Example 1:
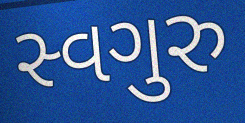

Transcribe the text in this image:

સ્વગુરુ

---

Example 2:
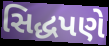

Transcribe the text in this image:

સિદ્ધપણે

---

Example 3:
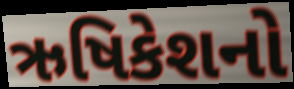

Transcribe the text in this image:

ઋષિકેશનો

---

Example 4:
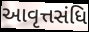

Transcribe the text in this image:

આવૃત્તસંધિ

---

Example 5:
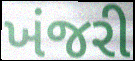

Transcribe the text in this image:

ખંજરી